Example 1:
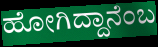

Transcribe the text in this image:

ಹೋಗಿದ್ದಾನೆಂಬ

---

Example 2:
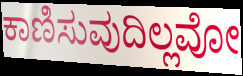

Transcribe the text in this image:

ಕಾಣಿಸುವುದಿಲ್ಲವೋ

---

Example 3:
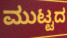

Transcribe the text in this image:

ಮುಟ್ಟದ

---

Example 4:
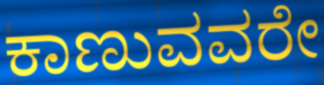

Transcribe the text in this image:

ಕಾಣುವವರೇ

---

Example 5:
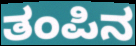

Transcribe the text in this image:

ತಂಪಿನ